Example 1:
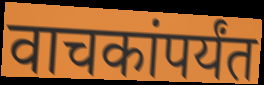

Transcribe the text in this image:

वाचकांपर्यंत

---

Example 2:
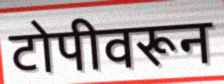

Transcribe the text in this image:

टोपीवरून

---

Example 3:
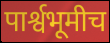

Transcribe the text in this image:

पार्श्वभूमीच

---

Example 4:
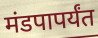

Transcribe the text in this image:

मंडपापर्यंत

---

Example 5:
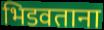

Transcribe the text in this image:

भिडवताना